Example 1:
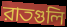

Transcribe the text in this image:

রাতগুলি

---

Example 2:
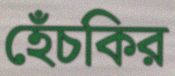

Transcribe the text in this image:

হেঁচকির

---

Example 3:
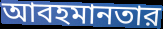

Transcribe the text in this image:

আবহমানতার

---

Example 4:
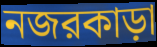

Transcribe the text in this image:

নজরকাড়া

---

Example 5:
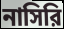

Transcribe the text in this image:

নাসিরি